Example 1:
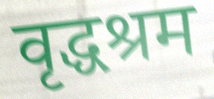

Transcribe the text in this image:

वृद्धश्रम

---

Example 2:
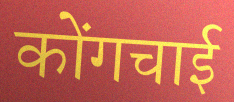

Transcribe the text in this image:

कोंगचाई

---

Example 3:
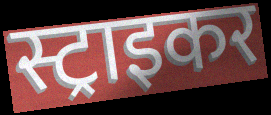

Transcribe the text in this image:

स्ट्राइकर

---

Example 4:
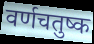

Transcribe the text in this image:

वर्णचतुष्क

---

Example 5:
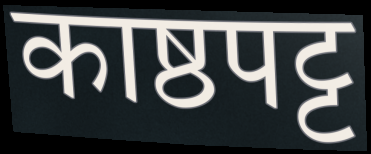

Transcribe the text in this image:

काष्ठपट्ट